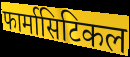
फार्मासिटिकल